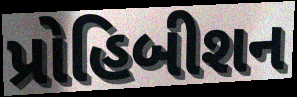
પ્રોહિબીશન